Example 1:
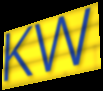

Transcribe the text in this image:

KW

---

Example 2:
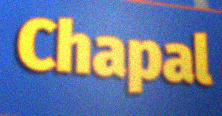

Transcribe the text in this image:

Chapal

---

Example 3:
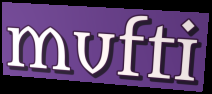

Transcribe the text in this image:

mufti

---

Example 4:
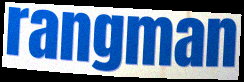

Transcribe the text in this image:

rangman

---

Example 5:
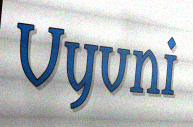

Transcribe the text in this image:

Uyuni